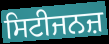
ਸਿਟੀਜਨਜ਼